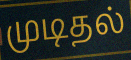
முடிதல்